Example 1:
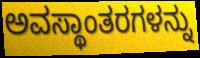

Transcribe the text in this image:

ಅವಸ್ಥಾಂತರಗಳನ್ನು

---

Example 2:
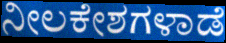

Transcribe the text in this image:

ನೀಲಕೇಶಗಳಾಡೆ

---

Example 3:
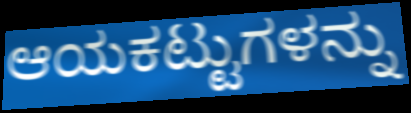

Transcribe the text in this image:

ಆಯಕಟ್ಟುಗಳನ್ನು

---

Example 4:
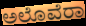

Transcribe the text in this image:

ಅಲೊವೆರಾ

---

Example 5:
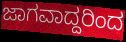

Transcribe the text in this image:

ಜಾಗವಾದ್ದರಿಂದ